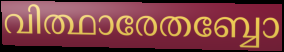
വിത്ഥാരേതബ്ബോ